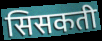
सिसकती